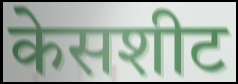
केसशीट